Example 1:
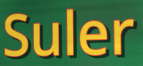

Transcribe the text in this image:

Suler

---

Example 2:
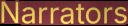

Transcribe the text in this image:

Narrators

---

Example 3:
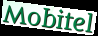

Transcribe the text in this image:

Mobitel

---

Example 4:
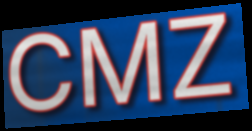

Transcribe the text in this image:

CMZ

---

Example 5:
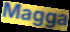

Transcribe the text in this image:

Magga